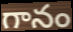
గానం